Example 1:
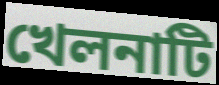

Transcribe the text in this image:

খেলনাটি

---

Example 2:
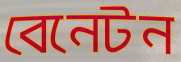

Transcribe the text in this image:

বেনেটন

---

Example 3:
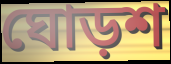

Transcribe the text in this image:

ঘোড়শ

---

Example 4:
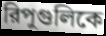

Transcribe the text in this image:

রিপুগুলিকে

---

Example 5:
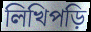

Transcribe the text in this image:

লিখিপড়ি